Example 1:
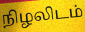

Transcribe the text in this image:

நிழலிடம்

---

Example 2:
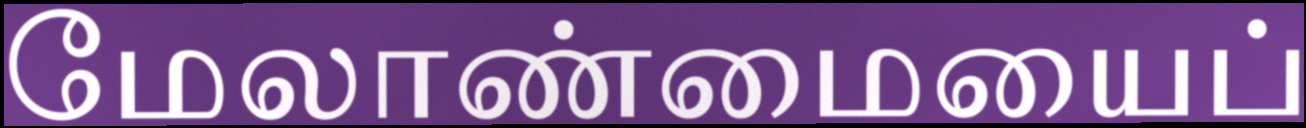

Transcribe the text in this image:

மேலாண்மையைப்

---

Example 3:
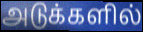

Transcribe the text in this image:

அடுக்களில்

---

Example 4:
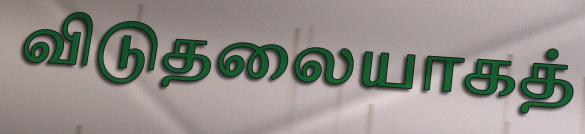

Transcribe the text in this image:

விடுதலையாகத்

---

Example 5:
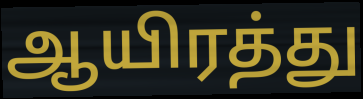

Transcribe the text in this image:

ஆயிரத்து